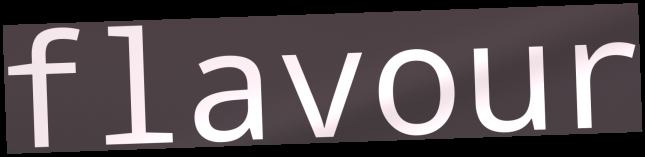
flavour